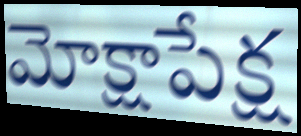
మోక్షాపేక్ష